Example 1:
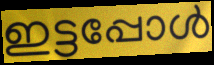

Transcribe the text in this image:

ഇട്ടപ്പോൾ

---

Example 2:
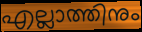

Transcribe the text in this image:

എല്ലാത്തിനും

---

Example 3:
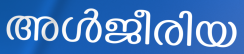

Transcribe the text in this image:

അൾജീരിയ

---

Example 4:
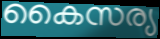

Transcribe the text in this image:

കൈസര്യ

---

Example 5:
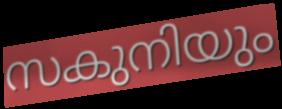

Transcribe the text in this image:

സകുനിയും